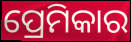
ପ୍ରେମିକାର